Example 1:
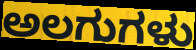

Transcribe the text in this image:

ಅಲಗುಗಳು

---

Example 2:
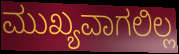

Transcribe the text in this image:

ಮುಖ್ಯವಾಗಲಿಲ್ಲ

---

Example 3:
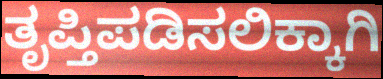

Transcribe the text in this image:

ತೃಪ್ತಿಪಡಿಸಲಿಕ್ಕಾಗಿ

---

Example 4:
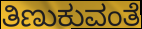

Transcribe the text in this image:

ತಿಣುಕುವಂತೆ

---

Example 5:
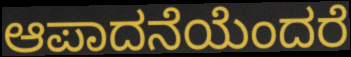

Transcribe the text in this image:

ಆಪಾದನೆಯೆಂದರೆ